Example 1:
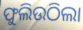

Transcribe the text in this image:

ଫୁଲିଉଠିଲା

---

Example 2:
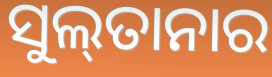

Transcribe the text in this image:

ସୁଲ୍‌ତାନାର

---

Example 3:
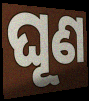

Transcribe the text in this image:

ଘୂଣ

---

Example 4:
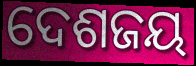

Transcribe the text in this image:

ଦେଶଜୟ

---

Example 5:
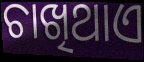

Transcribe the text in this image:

ଚାଖିଥାଏ